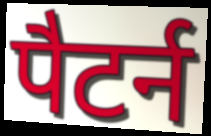
पैटर्न